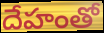
దేహంతో